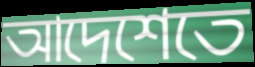
আদেশেতে